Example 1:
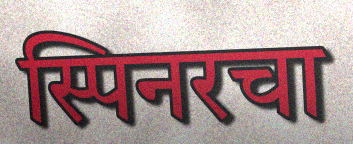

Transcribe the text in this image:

स्पिनरचा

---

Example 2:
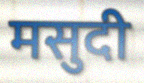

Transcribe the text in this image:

मसुदी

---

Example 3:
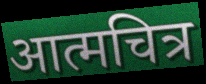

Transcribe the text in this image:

आत्मचित्र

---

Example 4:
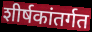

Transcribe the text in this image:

शीर्षकांतर्गत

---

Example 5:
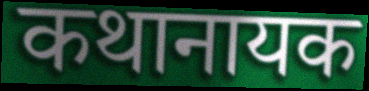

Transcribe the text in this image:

कथानायक